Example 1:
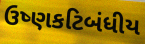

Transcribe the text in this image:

ઉષ્ણકટિબંધીય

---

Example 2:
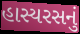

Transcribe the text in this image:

હાસ્યરસનું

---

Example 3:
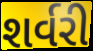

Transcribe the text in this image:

શર્વરી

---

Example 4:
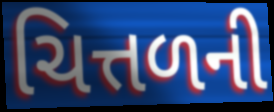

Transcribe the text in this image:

ચિત્તળની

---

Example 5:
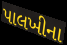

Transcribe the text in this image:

પાલખીના